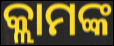
କ୍ଲାମଙ୍କ